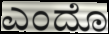
ಎಂದೊ